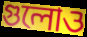
গুলোও